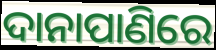
ଦାନାପାଣିରେ